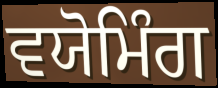
ਵਯੋਮਿੰਗ